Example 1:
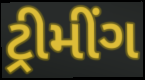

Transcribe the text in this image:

ટ્રીમીંગ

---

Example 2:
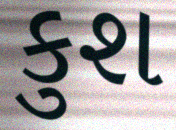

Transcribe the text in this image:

કુશ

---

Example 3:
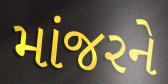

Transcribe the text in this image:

માંજરને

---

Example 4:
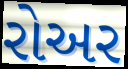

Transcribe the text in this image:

રોઅર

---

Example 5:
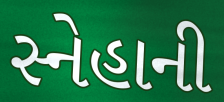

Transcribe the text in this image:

સ્નેહાની